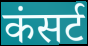
कंसर्ट